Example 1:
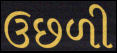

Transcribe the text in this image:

ઉછળી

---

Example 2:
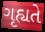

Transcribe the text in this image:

ગૃહ્યતે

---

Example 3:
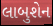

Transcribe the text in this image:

લાબુશેન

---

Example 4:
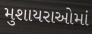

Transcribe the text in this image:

મુશાયરાઓમાં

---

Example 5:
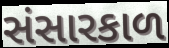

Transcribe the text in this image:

સંસારકાળ